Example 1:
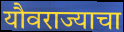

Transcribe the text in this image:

यौवराज्याचा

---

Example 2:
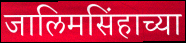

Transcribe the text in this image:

जालिमसिंहाच्या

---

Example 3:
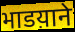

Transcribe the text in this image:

भाडय़ाने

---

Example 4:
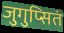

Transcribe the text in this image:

जुगुप्सितं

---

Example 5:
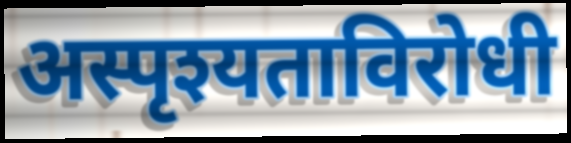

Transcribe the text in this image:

अस्पृश्यताविरोधी